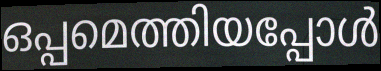
ഒപ്പമെത്തിയപ്പോൾ